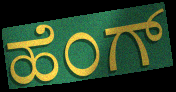
ಹೆಂಗ್